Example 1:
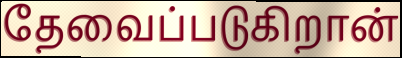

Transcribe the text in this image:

தேவைப்படுகிறான்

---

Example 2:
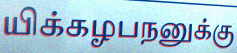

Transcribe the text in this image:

யிக்கழபநனுக்கு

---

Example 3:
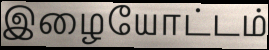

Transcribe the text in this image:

இழையோட்டம்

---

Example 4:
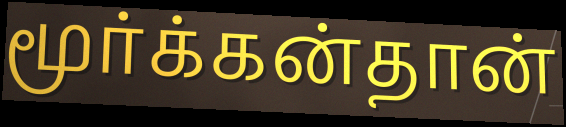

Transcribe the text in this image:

மூர்க்கன்தான்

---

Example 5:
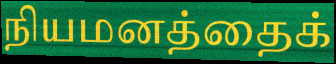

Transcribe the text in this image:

நியமனத்தைக்